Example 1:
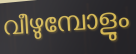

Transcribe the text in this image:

വീഴുമ്പോളും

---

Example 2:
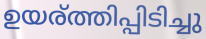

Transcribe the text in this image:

ഉയര്ത്തിപ്പിടിച്ചു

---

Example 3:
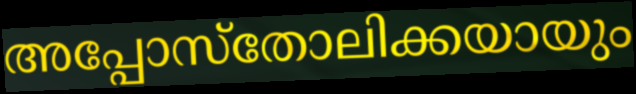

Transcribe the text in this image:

അപ്പോസ്തോലിക്കയായും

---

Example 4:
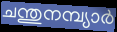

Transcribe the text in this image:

ചന്തുനമ്പ്യാർ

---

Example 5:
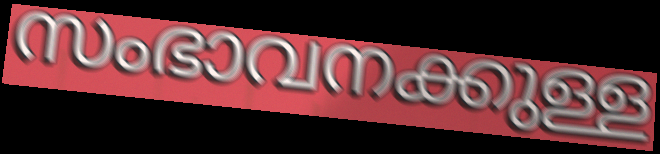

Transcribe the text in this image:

സംഭാവനക്കുള്ള